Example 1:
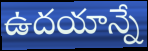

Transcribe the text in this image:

ఉదయాన్నే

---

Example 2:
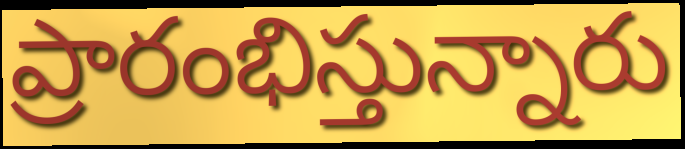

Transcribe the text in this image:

ప్రారంభిస్తున్నారు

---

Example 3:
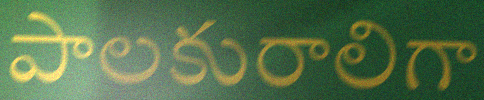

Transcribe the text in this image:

పాలకురాలిగా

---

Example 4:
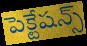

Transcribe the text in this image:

పెక్టేషన్స్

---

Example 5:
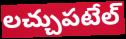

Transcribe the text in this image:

లచ్చుపటేల్